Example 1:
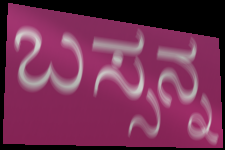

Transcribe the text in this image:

ಬಸ್ಸನ್ನ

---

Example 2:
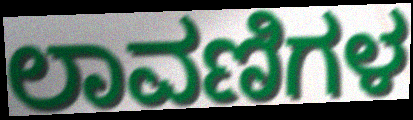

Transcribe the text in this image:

ಲಾವಣಿಗಳ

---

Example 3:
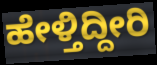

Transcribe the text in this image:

ಹೇಳ್ತಿದ್ದೀರಿ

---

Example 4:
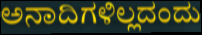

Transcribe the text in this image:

ಅನಾದಿಗಳಿಲ್ಲದಂದು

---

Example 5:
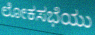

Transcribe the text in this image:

ಲೋಕಸಭೆಯು